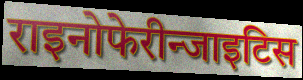
राइनोफेरीन्जाइटिस